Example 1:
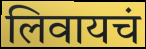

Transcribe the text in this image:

लिवायचं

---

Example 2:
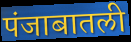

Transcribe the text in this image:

पंजाबातली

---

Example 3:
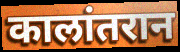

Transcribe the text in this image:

कालांतरान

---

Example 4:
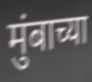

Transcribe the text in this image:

मुंबाच्या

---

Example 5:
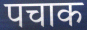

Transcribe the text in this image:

पचाक